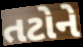
તટોને